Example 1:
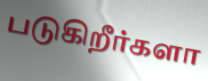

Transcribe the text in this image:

படுகிறீர்களா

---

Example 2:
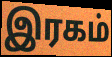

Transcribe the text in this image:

இரகம்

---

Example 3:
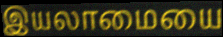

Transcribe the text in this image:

இயலாமையை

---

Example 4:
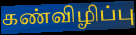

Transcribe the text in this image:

கண்விழிப்பு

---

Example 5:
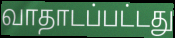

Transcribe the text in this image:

வாதாடப்பட்டது